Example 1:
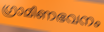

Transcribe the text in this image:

ഗ്രാമീണഭവനം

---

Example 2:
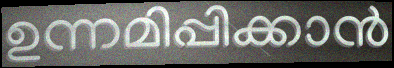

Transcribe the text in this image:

ഉന്നമിപ്പിക്കാൻ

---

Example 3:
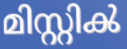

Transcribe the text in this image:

മിസ്റ്റിൿ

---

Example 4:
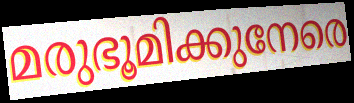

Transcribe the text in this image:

മരുഭൂമിക്കുനേരെ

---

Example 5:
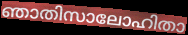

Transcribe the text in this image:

ഞാതിസാലോഹിതാ